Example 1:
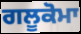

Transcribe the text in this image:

ਗਲੂਕੋਮਾ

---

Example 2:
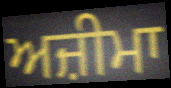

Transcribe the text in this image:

ਅਜ਼ੀਮਾ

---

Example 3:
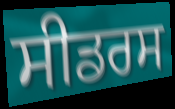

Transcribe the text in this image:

ਸੀਡਰਸ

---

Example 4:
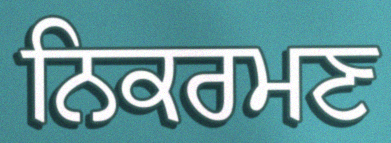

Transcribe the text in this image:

ਨਿਕਰਮਣ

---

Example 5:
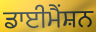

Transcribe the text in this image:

ਡਾਈਮੈਂਸ਼ਨ